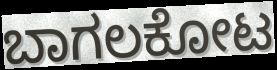
ಬಾಗಲಕೋಟ